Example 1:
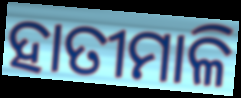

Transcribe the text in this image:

ହାତୀମାଳି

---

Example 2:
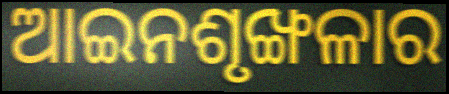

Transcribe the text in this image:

ଆଇନଶୃଙ୍ଖଳାର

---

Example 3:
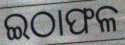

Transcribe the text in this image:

ଇଠାଫଳ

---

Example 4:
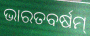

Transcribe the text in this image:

ଭାରତବର୍ଷମ୍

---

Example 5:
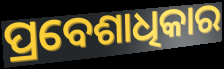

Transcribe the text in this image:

ପ୍ରବେଶାଧିକାର